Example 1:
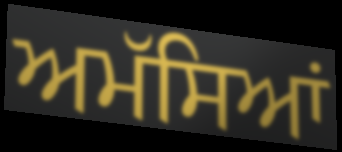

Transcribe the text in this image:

ਅਮੱਸਿਆਂ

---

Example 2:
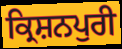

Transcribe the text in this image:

ਕ੍ਰਿਸ਼ਨਪੁਰੀ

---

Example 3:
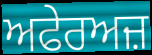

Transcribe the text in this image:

ਅਫੇਰਅਜ਼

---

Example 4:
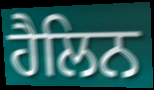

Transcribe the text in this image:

ਹੈਲਿਨ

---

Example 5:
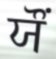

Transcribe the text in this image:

ਯੌਂ